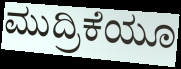
ಮುದ್ರಿಕೆಯೂ